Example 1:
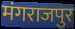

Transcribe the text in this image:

मंगराजपुर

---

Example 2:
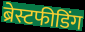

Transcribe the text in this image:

ब्रेस्टफीडिंग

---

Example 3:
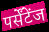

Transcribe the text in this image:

पर्सेंटेंज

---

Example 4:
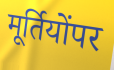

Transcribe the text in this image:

मूर्तियोंपर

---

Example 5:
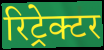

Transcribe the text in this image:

रिट्रेक्टर